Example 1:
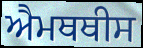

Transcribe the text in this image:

ਐਮਥਥੀਸ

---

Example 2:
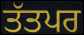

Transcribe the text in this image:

ਤੱਤਪਰ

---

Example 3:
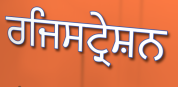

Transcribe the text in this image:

ਰਜਿਸਟ੍ਰੇਸ਼ਨ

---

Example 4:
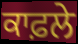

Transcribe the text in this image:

ਕਾਫ਼ਲੇ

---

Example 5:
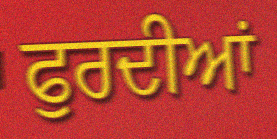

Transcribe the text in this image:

ਫੁਰਦੀਆਂ